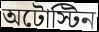
অটোস্টিন